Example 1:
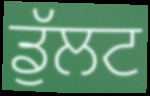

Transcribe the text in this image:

ਡੁੱਲਟ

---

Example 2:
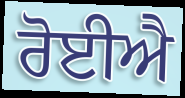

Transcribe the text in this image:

ਰੋਈਐ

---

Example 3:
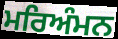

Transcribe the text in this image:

ਮਰਿਅੰਮਨ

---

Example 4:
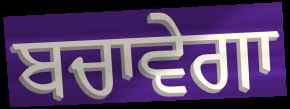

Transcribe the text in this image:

ਬਚਾਵੇਗਾ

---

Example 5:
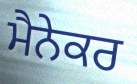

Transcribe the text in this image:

ਮੈਨੇਕਰ